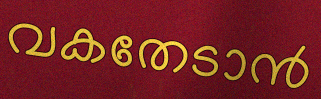
വകതേടാൻ